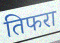
तिफरा